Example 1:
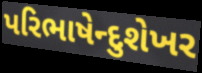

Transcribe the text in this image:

પરિભાષેન્દુશેખર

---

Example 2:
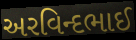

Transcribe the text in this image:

અરવિન્દભાઈ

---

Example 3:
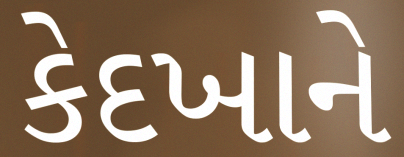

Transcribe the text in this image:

કેદખાને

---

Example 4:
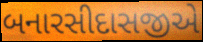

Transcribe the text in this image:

બનારસીદાસજીએ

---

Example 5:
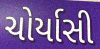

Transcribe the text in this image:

ચોર્યાસી